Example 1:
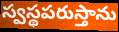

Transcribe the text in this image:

స్వస్థపరుస్తాను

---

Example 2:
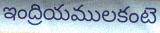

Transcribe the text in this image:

ఇంద్రియములకంటె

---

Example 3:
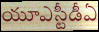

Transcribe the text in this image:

యూఎస్టీడీఏ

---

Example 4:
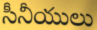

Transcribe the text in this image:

సీనీయులు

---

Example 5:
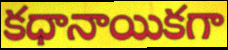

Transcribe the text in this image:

కధానాయికగా